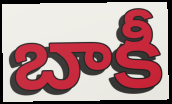
బాకీ